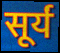
सूर्य॑